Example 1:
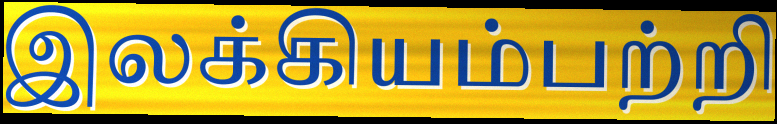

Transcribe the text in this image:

இலக்கியம்பற்றி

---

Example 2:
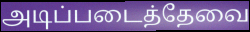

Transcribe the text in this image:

அடிப்படைத்தேவை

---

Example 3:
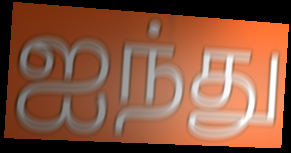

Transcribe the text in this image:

ஐந்து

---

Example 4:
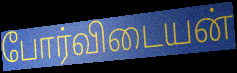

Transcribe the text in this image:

போர்விடையன்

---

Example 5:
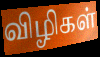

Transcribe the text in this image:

விழிகள்